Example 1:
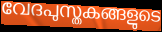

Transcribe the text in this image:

വേദപുസ്തകങ്ങളുടെ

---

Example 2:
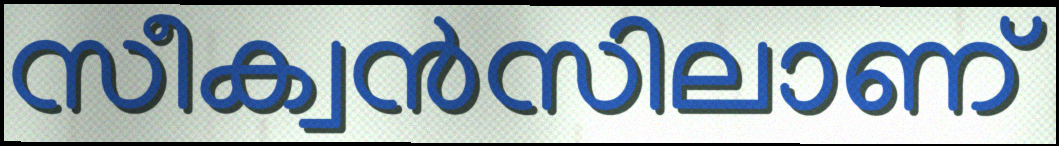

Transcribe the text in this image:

സീക്വൻസിലാണ്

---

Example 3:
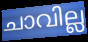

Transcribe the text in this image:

ചാവില്ല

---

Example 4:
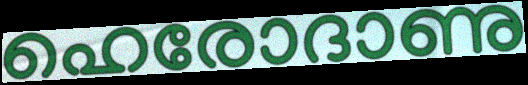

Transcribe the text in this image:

ഹെരോദാണു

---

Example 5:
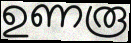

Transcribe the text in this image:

ഉണരൂ